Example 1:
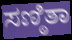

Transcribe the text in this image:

ಸಣ್ಠಿತಾ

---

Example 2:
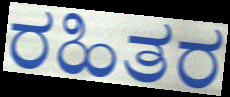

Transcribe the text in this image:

ರಹಿತರ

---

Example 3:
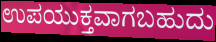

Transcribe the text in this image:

ಉಪಯುಕ್ತವಾಗಬಹುದು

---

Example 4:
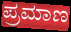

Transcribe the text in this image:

ಪ್ರಮಾಣ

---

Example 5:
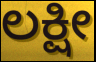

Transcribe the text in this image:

ಲಕ್ಷೀ